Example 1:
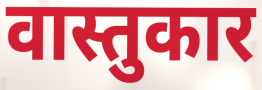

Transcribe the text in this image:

वास्तुकार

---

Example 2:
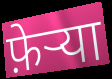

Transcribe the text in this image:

फ़ेर्‍या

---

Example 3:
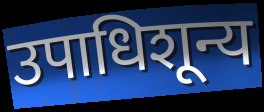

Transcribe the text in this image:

उपाधिशून्य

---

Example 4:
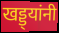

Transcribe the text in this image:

खड्ड्यांनी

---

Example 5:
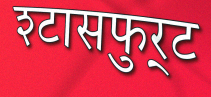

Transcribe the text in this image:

श्टासफुर्ट